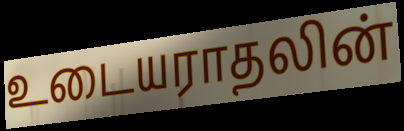
உடையராதலின்